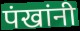
पंखांनी